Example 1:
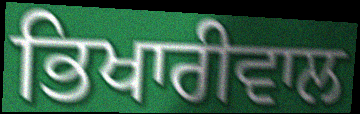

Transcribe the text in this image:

ਭਿਖਾਰੀਵਾਲ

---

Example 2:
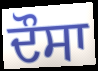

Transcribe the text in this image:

ਦੌਸਾ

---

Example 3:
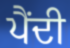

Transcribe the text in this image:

ਪੈਂਦੀ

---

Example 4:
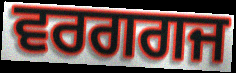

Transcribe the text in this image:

ਵਰਗਗਜ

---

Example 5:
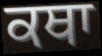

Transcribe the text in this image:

ਕਥਾ